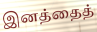
இனத்தைத்